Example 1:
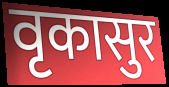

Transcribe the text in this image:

वृकासुर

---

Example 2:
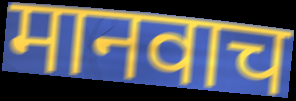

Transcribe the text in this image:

मानवाच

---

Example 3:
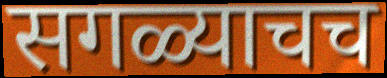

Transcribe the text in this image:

सगळ्याचच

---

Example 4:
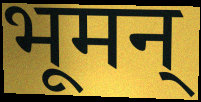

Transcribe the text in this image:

भूमन्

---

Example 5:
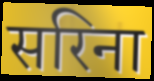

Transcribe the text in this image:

सरिना